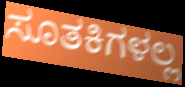
ಸೂತಕಿಗಳಲ್ಲ